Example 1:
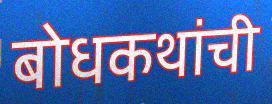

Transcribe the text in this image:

बोधकथांची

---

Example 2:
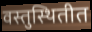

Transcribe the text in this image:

वस्तुस्थितीत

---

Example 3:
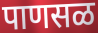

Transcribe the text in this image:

पाणसळ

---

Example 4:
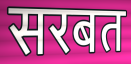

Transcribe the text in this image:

सरबत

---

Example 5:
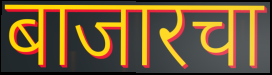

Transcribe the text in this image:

बाजारचा